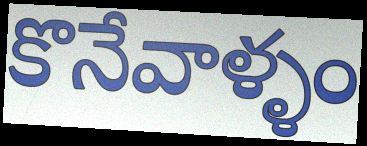
కొనేవాళ్ళం